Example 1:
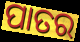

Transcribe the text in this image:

ପାତର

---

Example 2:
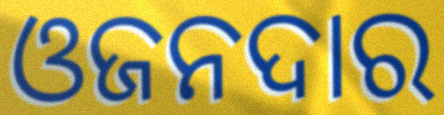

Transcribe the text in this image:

ଓଜନଦାର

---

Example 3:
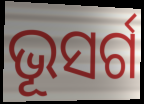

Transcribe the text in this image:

ଭୂସର୍ଗ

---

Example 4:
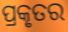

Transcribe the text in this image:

ପ୍ରକୃତର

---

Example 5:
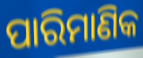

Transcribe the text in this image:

ପାରିମାଣିକ